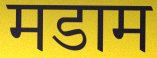
मडाम